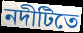
নদীটিতে